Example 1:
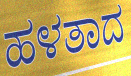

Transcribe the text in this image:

ಹಳತಾದ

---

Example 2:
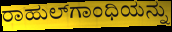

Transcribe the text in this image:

ರಾಹುಲ್‌ಗಾಂಧಿಯನ್ನು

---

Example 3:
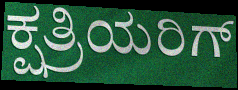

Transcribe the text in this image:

ಕ್ಷತ್ರಿಯರಿಗ್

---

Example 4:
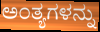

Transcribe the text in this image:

ಅಂತ್ಯಗಳನ್ನು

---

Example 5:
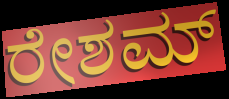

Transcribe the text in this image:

ರೇಶಮ್